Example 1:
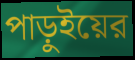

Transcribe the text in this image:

পাড়ুইয়ের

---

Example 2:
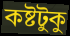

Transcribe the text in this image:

কষ্টটুকু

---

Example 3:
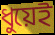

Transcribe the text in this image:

ধুয়েই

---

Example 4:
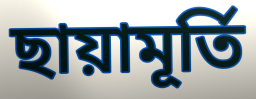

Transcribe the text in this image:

ছায়ামূর্তি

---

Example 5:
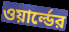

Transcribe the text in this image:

ওয়ার্ল্ডের